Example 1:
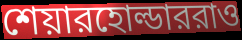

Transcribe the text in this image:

শেয়ারহোল্ডাররাও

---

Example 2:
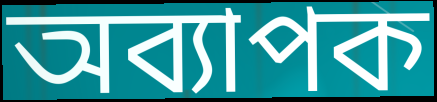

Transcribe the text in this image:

অব্যাপক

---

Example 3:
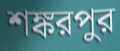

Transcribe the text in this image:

শঙ্করপুর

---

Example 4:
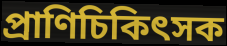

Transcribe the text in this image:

প্রাণিচিকিৎসক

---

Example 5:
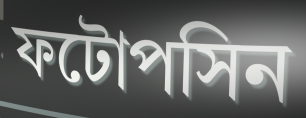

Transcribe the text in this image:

ফটোপসিন